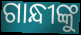
ଗାନ୍ଧୀଙ୍କୁ